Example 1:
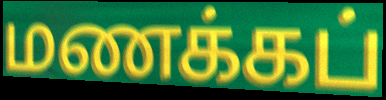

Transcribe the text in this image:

மணக்கப்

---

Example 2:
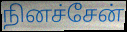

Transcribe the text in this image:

நினச்சேன்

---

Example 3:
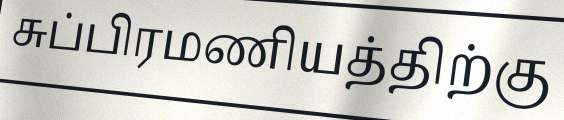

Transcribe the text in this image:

சுப்பிரமணியத்திற்கு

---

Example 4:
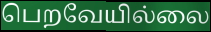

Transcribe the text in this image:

பெறவேயில்லை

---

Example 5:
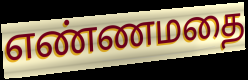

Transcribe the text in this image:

எண்ணமதை